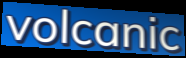
volcanic